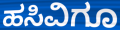
ಹಸಿವಿಗೂ